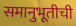
समानुभूतीची